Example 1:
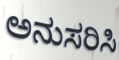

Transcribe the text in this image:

ಅನುಸರಿಸಿ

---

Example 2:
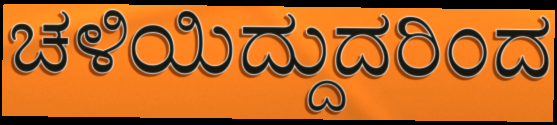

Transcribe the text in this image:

ಚಳಿಯಿದ್ದುದರಿಂದ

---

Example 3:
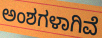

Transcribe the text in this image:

ಅಂಶಗಳಾಗಿವೆ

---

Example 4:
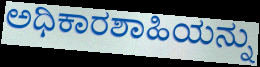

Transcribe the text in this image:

ಅಧಿಕಾರಶಾಹಿಯನ್ನು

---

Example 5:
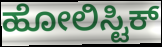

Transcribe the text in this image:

ಹೋಲಿಸ್ಟಿಕ್